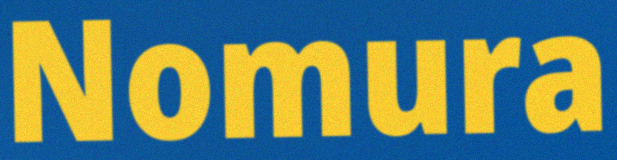
Nomura